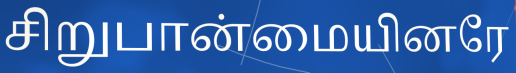
சிறுபான்மையினரே